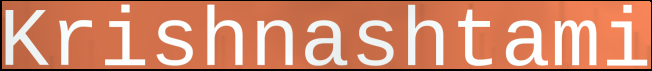
Krishnashtami